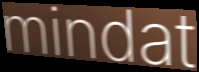
mindat